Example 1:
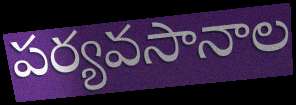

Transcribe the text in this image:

పర్యవసానాల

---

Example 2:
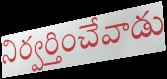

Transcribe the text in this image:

నిర్వర్తించేవాడు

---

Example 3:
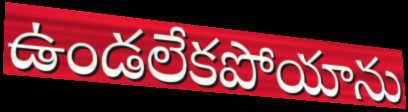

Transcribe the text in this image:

ఉండలేకపోయాను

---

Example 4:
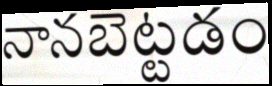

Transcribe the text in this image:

నానబెట్టడం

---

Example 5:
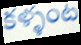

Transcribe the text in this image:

కళ్ళంట